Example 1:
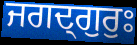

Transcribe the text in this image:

ਜਗਦ੍ਗੁਰੁਃ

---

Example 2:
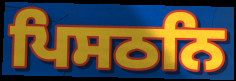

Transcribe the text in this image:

ਪਿਸਠਨਿ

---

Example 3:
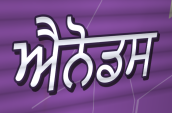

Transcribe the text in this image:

ਐਨੋਡਸ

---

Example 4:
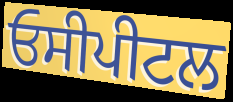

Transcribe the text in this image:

ਓਸੀਪੀਟਲ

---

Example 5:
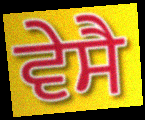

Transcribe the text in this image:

ਵੇਸੈ